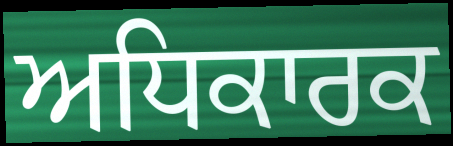
ਅਧਿਕਾਰਕ